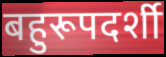
बहुरूपदर्शी